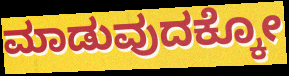
ಮಾಡುವುದಕ್ಕೋ